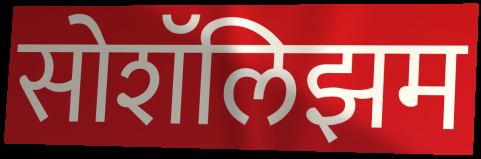
सोशॅलिझम